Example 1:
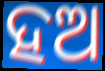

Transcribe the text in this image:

ହଅ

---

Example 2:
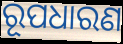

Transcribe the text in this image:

ରୂପଧାରଣ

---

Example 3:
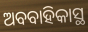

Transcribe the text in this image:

ଅବବାହିକାସ୍ଥ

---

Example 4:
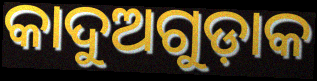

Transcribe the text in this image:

କାଦୁଅଗୁଡ଼ାକ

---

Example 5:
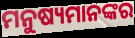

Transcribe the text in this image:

ମନୁଷ୍ୟମାନଙ୍କର